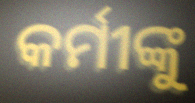
କର୍ମୀଙ୍କୁ